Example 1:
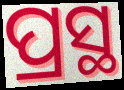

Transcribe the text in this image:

ପ୍ରସ୍ଥ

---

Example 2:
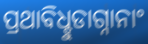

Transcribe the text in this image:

ପ୍ରଥାବିଧ୍ହୁଡାଗ୍ନାନାଂ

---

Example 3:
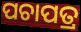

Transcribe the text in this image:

ପଚାପତ୍ର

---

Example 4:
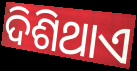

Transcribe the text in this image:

ଦିଶିଥାଏ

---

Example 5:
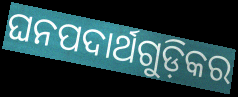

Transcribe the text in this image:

ଘନପଦାର୍ଥଗୁଡ଼ିକର